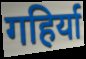
गहिर्या